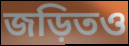
জড়িতও